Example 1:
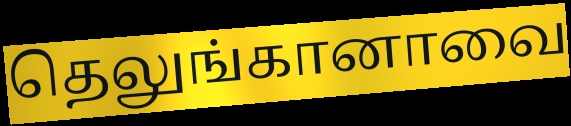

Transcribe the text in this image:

தெலுங்கானாவை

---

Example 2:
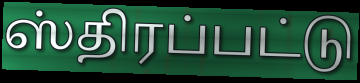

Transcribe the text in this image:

ஸ்திரப்பட்டு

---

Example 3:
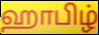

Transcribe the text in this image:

ஹாபிழ்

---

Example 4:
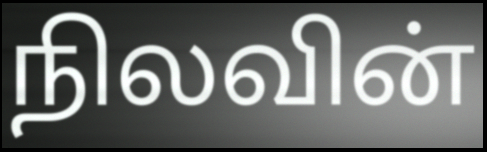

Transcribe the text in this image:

நிலவின்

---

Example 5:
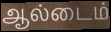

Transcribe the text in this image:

ஆல்டைம்